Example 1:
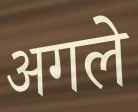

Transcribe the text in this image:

अगले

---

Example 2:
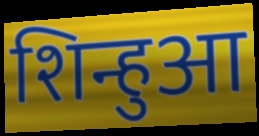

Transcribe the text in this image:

शिन्हुआ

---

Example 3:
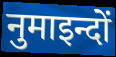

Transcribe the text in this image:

नुमाइन्दों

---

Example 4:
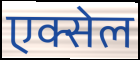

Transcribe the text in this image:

एक्सेल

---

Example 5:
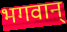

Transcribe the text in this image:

भगवान्